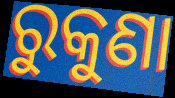
ରୁକୁଣା